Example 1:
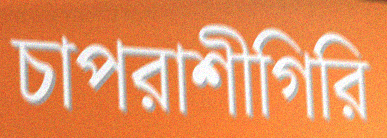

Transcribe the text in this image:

চাপরাশীগিরি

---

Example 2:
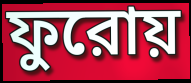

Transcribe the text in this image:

ফুরোয়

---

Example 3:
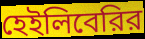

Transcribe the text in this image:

হেইলিবেরির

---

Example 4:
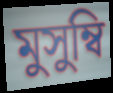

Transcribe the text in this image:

মুসুম্বি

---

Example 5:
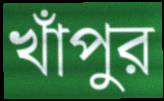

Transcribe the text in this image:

খাঁপুর